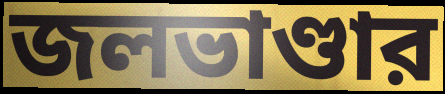
জলভাণ্ডার